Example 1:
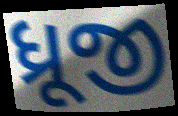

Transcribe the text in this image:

ધ્રૂજી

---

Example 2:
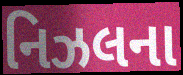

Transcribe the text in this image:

નિઝલના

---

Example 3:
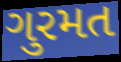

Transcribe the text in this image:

ગુરમત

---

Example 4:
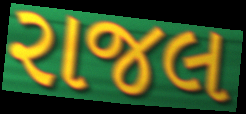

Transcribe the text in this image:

રાજલ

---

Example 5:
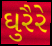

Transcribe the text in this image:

ઘુરૈરે